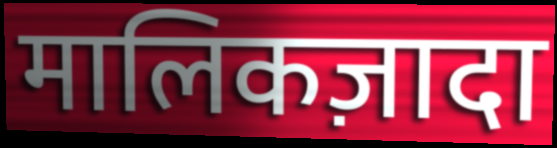
मालिकज़ादा